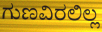
ಗುಣವಿರಲಿಲ್ಲ